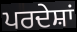
ਪਰਦੇਸ਼ਾਂ